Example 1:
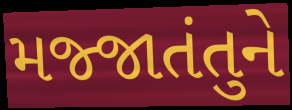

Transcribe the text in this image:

મજ્જાતંતુને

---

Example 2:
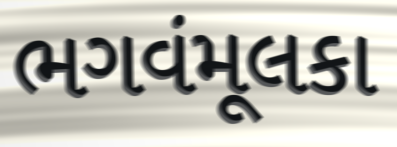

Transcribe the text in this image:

ભગવંમૂલકા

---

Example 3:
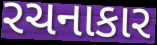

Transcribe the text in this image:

રચનાકાર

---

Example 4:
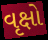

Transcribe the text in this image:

વૃક્ષો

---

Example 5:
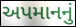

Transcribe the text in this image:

અપમાનનું